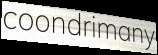
coondrimany